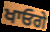
ਖਾਓਗੇ